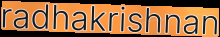
radhakrishnan